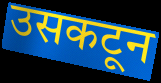
उसकटून